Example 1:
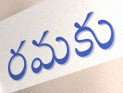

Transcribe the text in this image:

రమకు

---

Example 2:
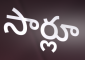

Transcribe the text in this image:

సార్లూ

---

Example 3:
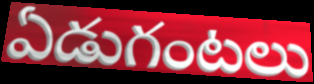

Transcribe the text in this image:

ఏడుగంటలు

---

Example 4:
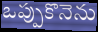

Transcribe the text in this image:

ఒప్పుకొనెను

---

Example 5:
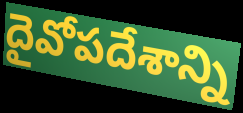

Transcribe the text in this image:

దైవోపదేశాన్ని